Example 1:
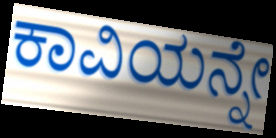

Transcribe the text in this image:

ಕಾವಿಯನ್ನೇ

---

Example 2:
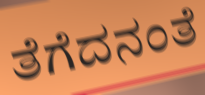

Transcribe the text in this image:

ತೆಗೆದನಂತೆ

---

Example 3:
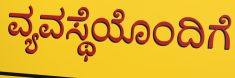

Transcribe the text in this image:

ವ್ಯವಸ್ಥೆಯೊಂದಿಗೆ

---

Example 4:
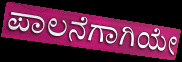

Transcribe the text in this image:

ಪಾಲನೆಗಾಗಿಯೇ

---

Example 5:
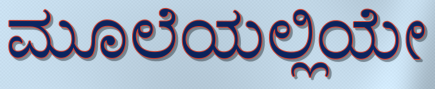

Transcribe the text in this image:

ಮೂಲೆಯಲ್ಲಿಯೇ